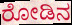
ರೋಡಿನ